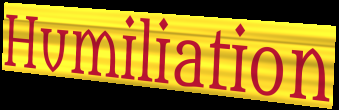
Humiliation